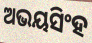
ଅଭୟସିଂହ